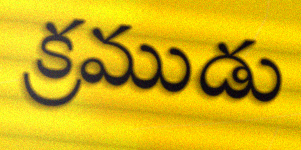
క్రముడు